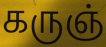
கருஞ்